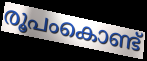
രൂപംകൊണ്ട്